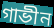
গাভীন